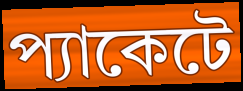
প্যাকেটে